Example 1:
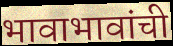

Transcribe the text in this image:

भावाभावांची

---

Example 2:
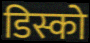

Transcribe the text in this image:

डिस्को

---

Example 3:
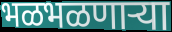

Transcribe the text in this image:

भळभळणाऱ्या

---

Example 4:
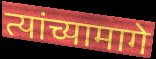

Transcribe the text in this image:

त्यांच्यामागे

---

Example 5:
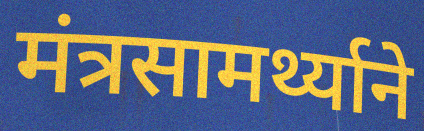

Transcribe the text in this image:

मंत्रसामर्थ्याने